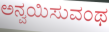
ಅನ್ವಯಿಸುವಂಥ